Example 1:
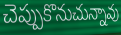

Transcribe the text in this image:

చెప్పుకొనుచున్నావు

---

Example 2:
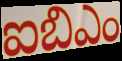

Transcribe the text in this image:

ఐబిఎం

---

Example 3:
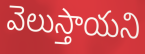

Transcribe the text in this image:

వెలుస్తాయని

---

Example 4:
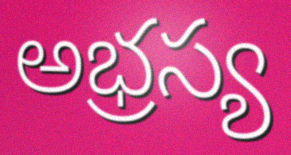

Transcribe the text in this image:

అభ్రస్య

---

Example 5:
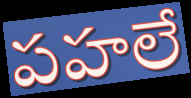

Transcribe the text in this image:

పహలే